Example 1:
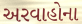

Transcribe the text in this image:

અરવાહોના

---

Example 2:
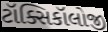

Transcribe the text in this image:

ટૉક્સિકૉલોજી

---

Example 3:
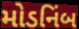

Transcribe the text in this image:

મોડનિંબ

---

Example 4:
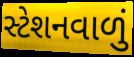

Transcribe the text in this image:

સ્ટેશનવાળું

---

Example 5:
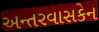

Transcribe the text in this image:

અન્તરવાસકેન